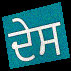
ਦੇਸ